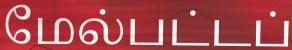
மேல்பட்டப்